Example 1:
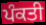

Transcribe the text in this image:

ਪੰਕਤੀ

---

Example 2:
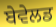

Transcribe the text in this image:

ਬੇਵੇਲਡ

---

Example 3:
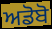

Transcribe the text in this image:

ਅਡੋਬੋ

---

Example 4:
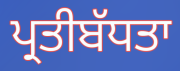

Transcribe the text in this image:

ਪ੍ਰਤੀਬੱਧਤਾ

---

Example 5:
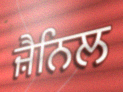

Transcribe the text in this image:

ਜ਼ੈਨਿਲ